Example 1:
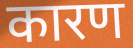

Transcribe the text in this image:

कारण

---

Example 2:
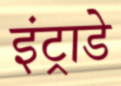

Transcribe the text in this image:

इंट्राडे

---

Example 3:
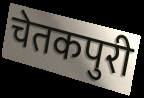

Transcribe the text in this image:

चेतकपुरी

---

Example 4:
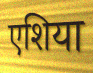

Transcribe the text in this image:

एशिया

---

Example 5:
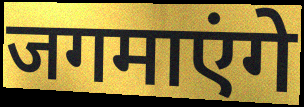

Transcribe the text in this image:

जगमाएंगे